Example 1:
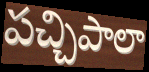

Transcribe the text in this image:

పచ్చిపాలా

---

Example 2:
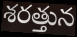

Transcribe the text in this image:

శరత్తున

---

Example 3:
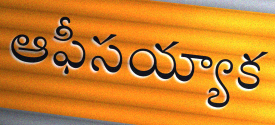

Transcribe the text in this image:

ఆఫీసయ్యాక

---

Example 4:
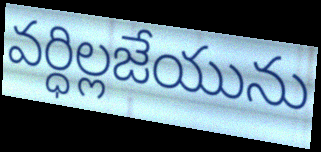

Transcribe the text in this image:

వర్ధిల్లజేయును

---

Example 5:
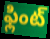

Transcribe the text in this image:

ఫ్లింట్